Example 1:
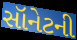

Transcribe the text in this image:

સૉનેટની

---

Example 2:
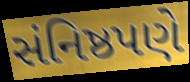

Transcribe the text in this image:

સંનિષ્ઠપણે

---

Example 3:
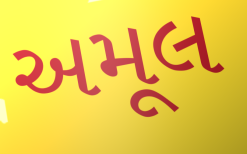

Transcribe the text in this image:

અમૂલ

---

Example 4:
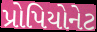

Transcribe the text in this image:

પ્રોપિયોનેટ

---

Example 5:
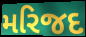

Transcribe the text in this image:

મરિજદ